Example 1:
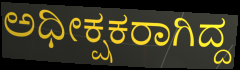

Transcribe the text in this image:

ಅಧೀಕ್ಷಕರಾಗಿದ್ದ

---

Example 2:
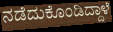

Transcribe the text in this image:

ನಡೆದುಕೊಂಡಿದ್ದಾಳೆ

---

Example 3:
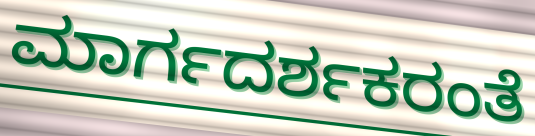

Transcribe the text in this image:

ಮಾರ್ಗದರ್ಶಕರಂತೆ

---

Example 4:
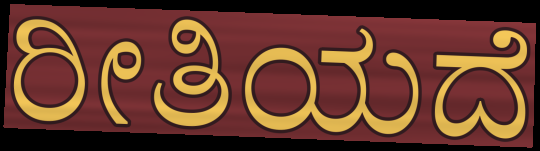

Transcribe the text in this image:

ರೀತಿಯದೆ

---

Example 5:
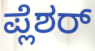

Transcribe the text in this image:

ಪ್ಲೆಶರ್